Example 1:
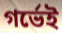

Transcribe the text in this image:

গর্ভেই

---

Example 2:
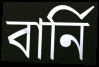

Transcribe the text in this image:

বার্নি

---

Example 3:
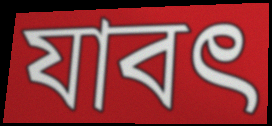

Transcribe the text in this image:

যাবৎ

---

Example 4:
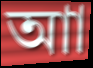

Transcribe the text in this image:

আা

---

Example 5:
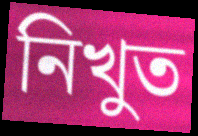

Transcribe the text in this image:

নিখুত